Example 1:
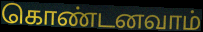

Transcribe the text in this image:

கொண்டனவாம்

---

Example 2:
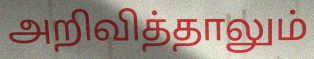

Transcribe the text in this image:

அறிவித்தாலும்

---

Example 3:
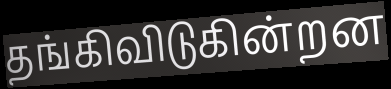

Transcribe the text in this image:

தங்கிவிடுகின்றன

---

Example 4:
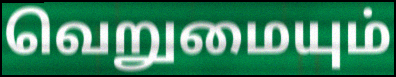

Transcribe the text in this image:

வெறுமையும்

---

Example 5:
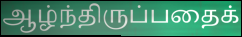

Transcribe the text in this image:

ஆழ்ந்திருப்பதைக்